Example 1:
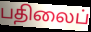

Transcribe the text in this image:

பதிலைப்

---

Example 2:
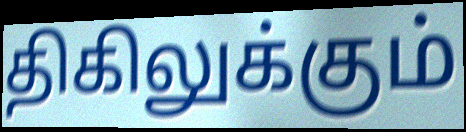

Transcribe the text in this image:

திகிலுக்கும்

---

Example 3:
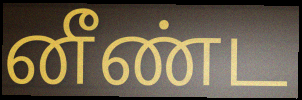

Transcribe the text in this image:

னீண்ட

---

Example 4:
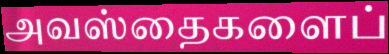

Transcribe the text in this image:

அவஸ்தைகளைப்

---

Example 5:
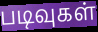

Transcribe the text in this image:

படிவுகள்